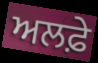
ਅਲਫ਼ੇ